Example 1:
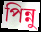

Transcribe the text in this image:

পিন্নু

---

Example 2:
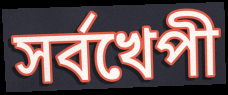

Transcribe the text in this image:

সর্বখেপী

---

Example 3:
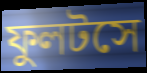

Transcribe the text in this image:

ফুলটসে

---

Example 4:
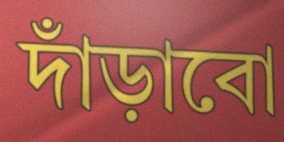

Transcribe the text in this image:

দাঁড়াবো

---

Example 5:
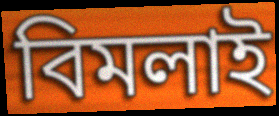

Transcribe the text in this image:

বিমলাই